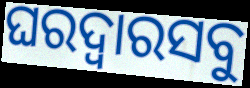
ଘରଦ୍ୱାରସବୁ